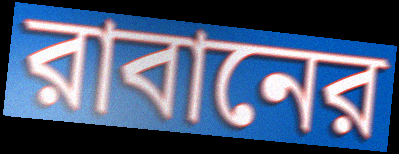
রাবানের